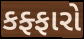
કફ્ફારો